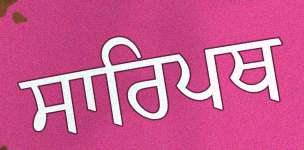
ਸਾਰਿਪਥ